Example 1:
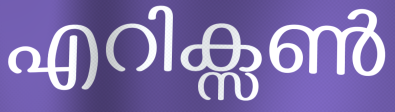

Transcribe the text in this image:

എറിക്സൺ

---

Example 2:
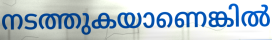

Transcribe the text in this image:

നടത്തുകയാണെങ്കിൽ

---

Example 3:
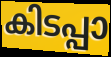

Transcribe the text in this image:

കിടപ്പാ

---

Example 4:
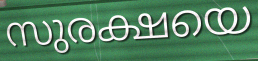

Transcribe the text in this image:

സുരക്ഷയെ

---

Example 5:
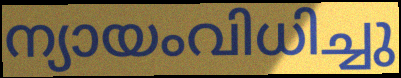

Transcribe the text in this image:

ന്യായംവിധിച്ചു